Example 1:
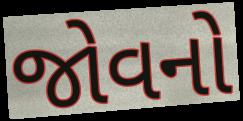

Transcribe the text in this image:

જોવનો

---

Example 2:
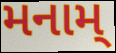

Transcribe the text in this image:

મનામ્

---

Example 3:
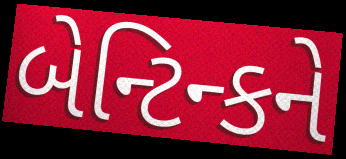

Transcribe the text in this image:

બેન્ટિન્કને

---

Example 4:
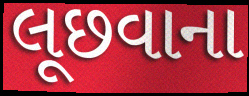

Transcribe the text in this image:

લૂછવાના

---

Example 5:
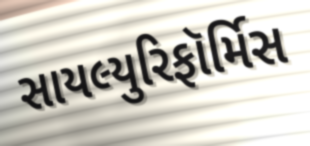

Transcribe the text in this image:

સાયલ્યુરિફૉર્મિસ